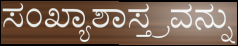
ಸಂಖ್ಯಾಶಾಸ್ತ್ರವನ್ನು